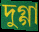
দুগ্গা